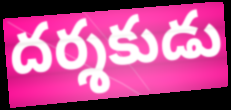
దర్శకుడు